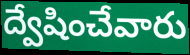
ద్వేషించేవారు